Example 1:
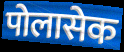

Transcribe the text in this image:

पोलासेक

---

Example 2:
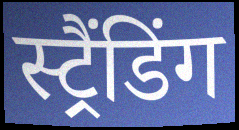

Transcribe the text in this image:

स्ट्रैंडिंग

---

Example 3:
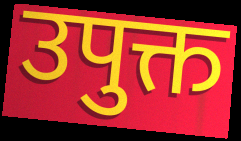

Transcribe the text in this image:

उपुक्त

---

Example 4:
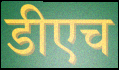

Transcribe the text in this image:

डीएच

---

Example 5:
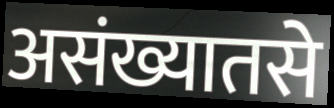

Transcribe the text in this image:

असंख्यातसे